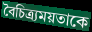
বৈচিত্র্যময়তাকে